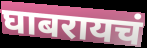
घाबरायचं